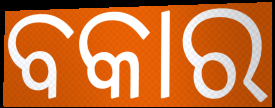
ବକାର